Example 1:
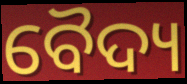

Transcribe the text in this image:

ବୈଦ୍ୟ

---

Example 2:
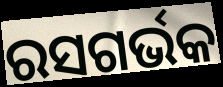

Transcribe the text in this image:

ରସଗର୍ଭକ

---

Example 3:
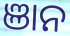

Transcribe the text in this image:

ଞାନ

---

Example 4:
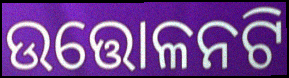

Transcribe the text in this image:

ଉତ୍ତୋଳନଟି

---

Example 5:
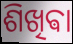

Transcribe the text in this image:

ଶିଖିଵା